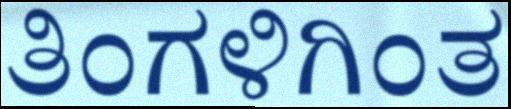
ತಿಂಗಳಿಗಿಂತ